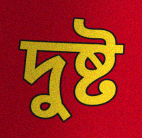
দুষ্ট